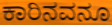
ಕಾರಿನವನೂ